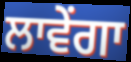
ਲਾਵੇਂਗਾ